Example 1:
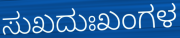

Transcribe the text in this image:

ಸುಖದುಃಖಂಗಳ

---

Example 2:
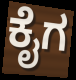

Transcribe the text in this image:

ಕೈಗ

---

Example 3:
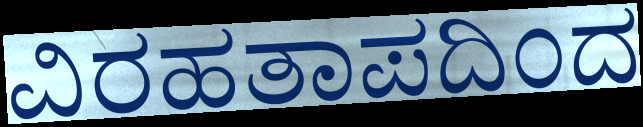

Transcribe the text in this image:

ವಿರಹತಾಪದಿಂದ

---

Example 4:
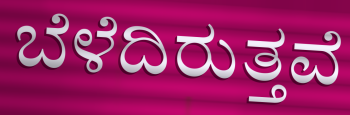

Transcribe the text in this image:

ಬೆಳೆದಿರುತ್ತವೆ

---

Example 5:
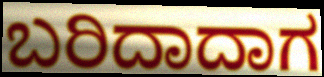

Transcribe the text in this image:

ಬರಿದಾದಾಗ